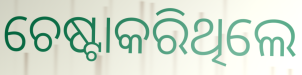
ଚେଷ୍ଟାକରିଥିଲେ